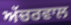
ਅੱਚਰਵਾਲ